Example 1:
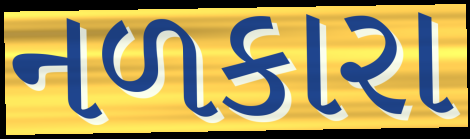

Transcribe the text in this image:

નળકારા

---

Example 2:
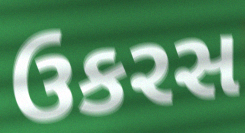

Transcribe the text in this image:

ઉકરસ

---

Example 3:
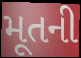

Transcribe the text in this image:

મૂતની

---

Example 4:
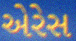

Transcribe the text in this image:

એરેસ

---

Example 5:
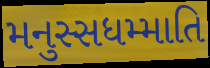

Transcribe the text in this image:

મનુસ્સધમ્માતિ